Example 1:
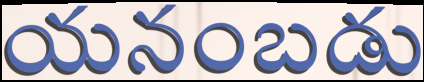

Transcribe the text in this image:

యనంబడు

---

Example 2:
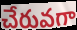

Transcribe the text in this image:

చేరువగా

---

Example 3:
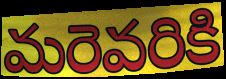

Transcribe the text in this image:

మరెవరికి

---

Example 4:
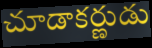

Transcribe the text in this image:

చూడాకర్ణుడు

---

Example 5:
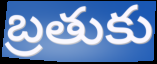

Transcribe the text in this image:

బ్రతుకు